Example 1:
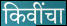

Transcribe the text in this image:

किवींचा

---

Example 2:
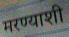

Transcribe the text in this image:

मरण्याशी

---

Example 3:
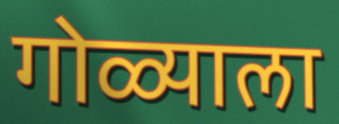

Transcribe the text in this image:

गोळ्याला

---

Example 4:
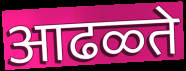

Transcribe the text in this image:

आढळ्ते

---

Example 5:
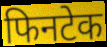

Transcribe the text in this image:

फिनटेक